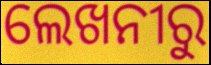
ଲେଖନୀରୁ